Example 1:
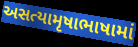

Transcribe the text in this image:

અસત્યામૃષાભાષામાં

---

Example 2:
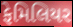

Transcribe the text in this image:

ફેમિલિયર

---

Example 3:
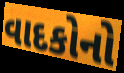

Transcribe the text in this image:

વાદકોનો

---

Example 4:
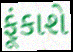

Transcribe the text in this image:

ફૂંકાશે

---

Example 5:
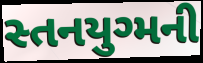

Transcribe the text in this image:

સ્તનયુગ્મની